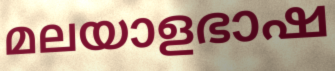
മലയാളഭാഷ